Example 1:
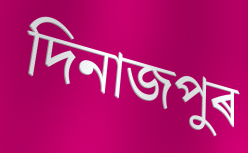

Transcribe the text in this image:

দিনাজপুৰ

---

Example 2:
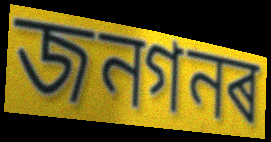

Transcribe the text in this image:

জনগনৰ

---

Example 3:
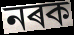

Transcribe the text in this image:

নৰক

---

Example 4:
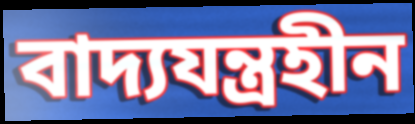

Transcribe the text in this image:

বাদ্যযন্ত্ৰহীন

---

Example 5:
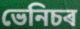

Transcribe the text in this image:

ভেনিচৰ